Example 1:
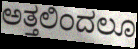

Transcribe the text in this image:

ಅತ್ತಲಿಂದಲೂ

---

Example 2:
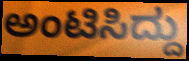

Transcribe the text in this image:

ಅಂಟಿಸಿದ್ದು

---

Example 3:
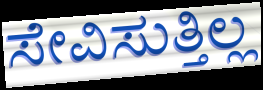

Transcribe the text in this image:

ಸೇವಿಸುತ್ತಿಲ್ಲ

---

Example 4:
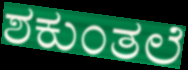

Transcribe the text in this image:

ಶಕುಂತಲೆ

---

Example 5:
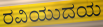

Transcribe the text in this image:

ರವಿಯುದಯ